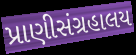
પ્રાણીસંગ્રહાલય